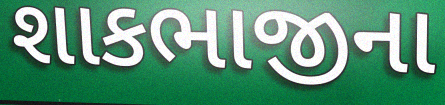
શાકભાજીના